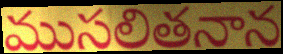
ముసలితనాన